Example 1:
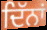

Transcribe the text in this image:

ਦਿੱਨਾਂ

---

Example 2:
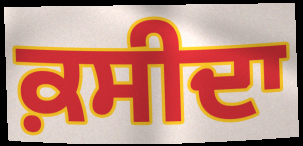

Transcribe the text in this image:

ਕ਼ਸੀਦਾ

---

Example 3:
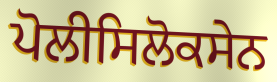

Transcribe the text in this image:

ਪੋਲੀਸਿਲੋਕਸੇਨ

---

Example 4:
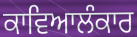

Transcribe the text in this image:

ਕਾਵਿਆਲੰਕਾਰ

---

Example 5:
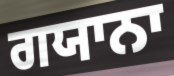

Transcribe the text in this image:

ਗਯਾਨਾ